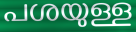
പശയുള്ള